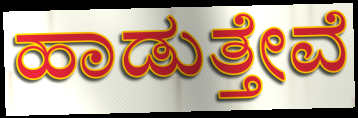
ಹಾಡುತ್ತೇವೆ